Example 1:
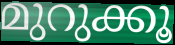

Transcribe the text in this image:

മുറുക്കൂ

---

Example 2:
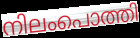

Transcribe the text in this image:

നിലംപൊത്തി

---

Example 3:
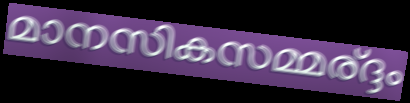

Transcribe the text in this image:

മാനസികസമ്മര്ദ്ദം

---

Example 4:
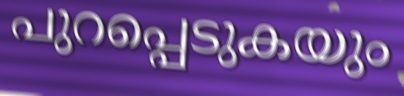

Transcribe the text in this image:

പുറപ്പെടുകയും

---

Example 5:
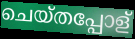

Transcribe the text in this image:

ചെയ്തപ്പോള്